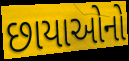
છાયાઓનો